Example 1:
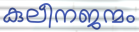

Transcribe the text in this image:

കുലീനജന്മം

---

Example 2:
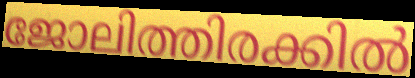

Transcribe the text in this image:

ജോലിത്തിരക്കിൽ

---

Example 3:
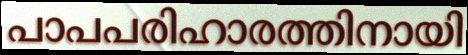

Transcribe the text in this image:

പാപപരിഹാരത്തിനായി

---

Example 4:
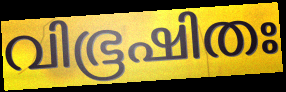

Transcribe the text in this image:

വിഭൂഷിതഃ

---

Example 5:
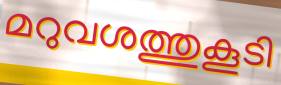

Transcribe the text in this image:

മറുവശത്തുകൂടി